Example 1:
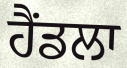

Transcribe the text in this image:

ਹੈਂਡਲਾ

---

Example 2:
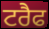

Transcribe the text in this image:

ਟਰੈਫ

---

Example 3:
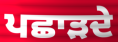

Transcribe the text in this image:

ਪਛਾੜਦੇ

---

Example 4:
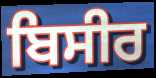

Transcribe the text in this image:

ਬਿਸੀਰ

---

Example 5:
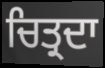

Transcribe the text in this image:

ਚਿਤ੍ਰਦਾ